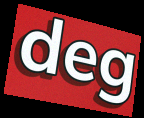
deg